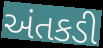
અંતકડી